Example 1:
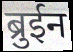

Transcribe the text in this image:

ब्रुईन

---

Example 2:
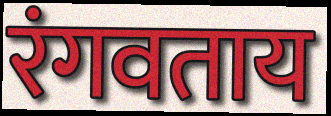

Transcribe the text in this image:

रंगवताय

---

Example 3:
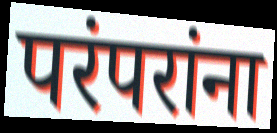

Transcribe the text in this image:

परंपरांना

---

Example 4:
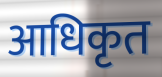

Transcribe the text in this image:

आधिकृत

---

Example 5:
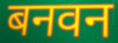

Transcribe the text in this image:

बनवन